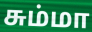
சும்மா